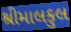
શ્રીમાલકુલ